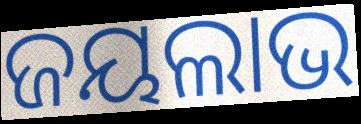
ଜୟଲାଭ